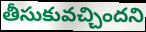
తీసుకువచ్చిందని